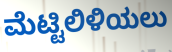
ಮೆಟ್ಟಿಲಿಳಿಯಲು